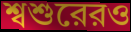
শ্বশুরেরও